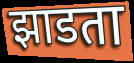
झाडता